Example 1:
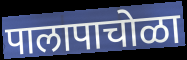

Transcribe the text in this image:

पालापाचोळा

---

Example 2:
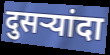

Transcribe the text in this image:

दुसऱ्यांदा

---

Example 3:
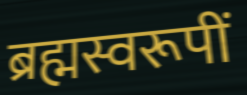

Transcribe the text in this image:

ब्रह्मस्वरूपीं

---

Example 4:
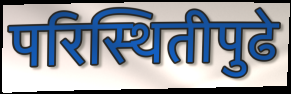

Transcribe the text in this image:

परिस्थितीपुढे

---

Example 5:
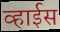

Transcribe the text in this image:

व्हाईस